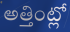
అత్తింట్లో